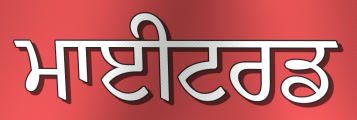
ਮਾਈਟਰਡ